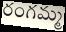
రంగమ్మ